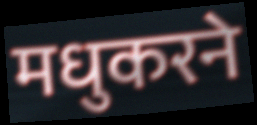
मधुकरने